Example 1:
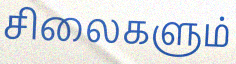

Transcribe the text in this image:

சிலைகளும்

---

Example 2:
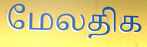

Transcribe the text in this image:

மேலதிக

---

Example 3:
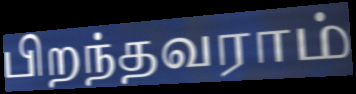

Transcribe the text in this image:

பிறந்தவராம்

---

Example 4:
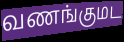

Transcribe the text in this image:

வணங்குமட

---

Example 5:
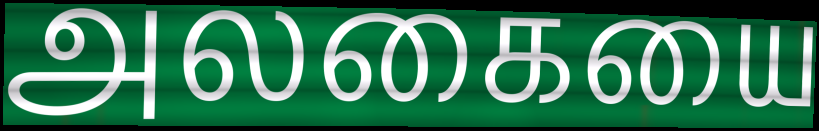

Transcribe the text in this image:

அலகையை